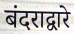
बंदराद्वारे